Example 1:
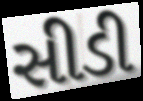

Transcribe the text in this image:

સીડી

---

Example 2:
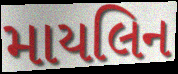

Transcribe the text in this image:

માયલિન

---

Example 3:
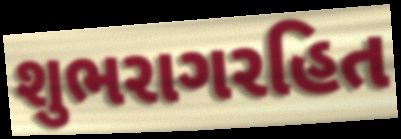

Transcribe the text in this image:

શુભરાગરહિત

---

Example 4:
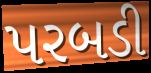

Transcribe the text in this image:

પરબડી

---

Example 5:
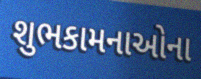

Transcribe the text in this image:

શુભકામનાઓના